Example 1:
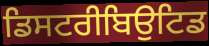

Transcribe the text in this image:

ਡਿਸਟਰੀਬਿਉਟਿਡ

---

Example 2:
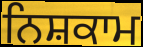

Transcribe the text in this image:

ਨਿਸ਼ਕਾਮ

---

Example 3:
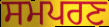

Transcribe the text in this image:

ਸਮਪਰਣ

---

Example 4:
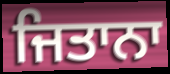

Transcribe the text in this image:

ਜਿਤਾਨਾ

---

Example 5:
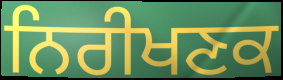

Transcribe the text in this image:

ਨਿਰੀਖਣਕ